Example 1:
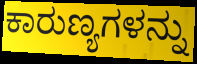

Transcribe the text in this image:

ಕಾರುಣ್ಯಗಳನ್ನು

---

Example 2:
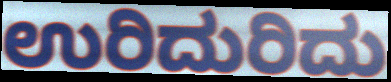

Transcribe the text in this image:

ಉರಿದುರಿದು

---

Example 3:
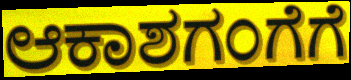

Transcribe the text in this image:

ಆಕಾಶಗಂಗೆಗೆ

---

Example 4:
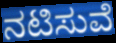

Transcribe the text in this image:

ನಟಿಸುವೆ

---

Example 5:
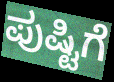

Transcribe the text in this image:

ಪುಷ್ಟಿಗೆ